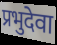
प्रभुदेवा